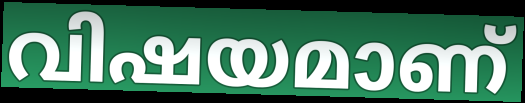
വിഷയമാണ്